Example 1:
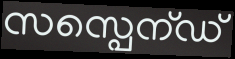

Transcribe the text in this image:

സസ്പെന്ഡ്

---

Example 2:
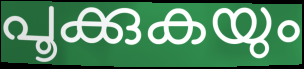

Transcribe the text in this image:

പൂക്കുകയും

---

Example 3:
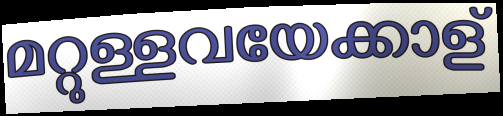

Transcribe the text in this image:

മറ്റുള്ളവയേക്കാള്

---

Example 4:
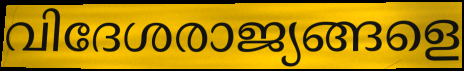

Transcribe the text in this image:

വിദേശരാജ്യങ്ങളെ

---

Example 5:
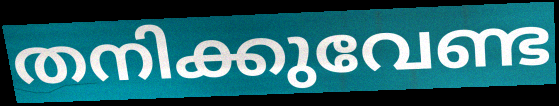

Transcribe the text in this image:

തനിക്കുവേണ്ട